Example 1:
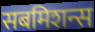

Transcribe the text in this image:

सबमिशन्स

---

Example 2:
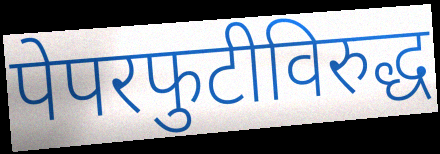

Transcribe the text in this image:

पेपरफुटीविरुद्ध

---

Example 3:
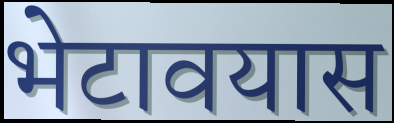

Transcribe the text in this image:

भेटावयास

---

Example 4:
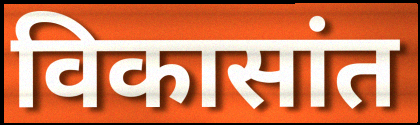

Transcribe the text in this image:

विकासांत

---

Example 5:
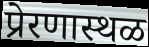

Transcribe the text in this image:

प्रेरणास्थळ